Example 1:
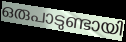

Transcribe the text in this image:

ഒരുപാടുണ്ടായി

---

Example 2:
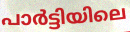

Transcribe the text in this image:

പാർട്ടിയിലെ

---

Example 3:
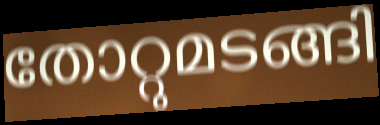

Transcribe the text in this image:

തോറ്റുമടങ്ങി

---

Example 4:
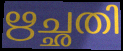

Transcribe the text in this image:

ഋച്ഛതി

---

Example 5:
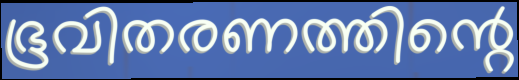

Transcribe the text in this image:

ഭൂവിതരണത്തിന്റെ